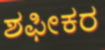
ಶಫೀಕರ